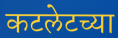
कटलेटच्या